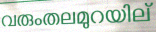
വരുംതലമുറയില്